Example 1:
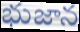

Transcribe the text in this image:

భుజాన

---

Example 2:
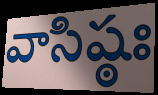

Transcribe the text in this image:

వాసిష్ఠః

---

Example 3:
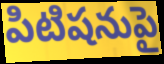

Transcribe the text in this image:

పిటిషనుపై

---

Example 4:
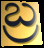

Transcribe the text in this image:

బ్ర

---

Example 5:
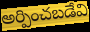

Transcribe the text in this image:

అర్పించబడేవి